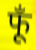
फूँ